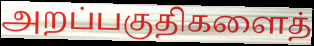
அறப்பகுதிகளைத்